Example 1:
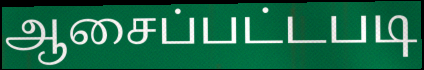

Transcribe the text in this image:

ஆசைப்பட்டபடி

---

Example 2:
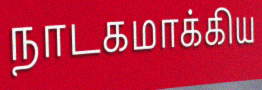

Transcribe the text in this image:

நாடகமாக்கிய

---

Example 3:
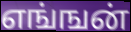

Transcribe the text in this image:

எங்ஙன்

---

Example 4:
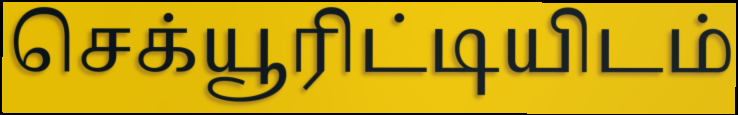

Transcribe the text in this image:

செக்யூரிட்டியிடம்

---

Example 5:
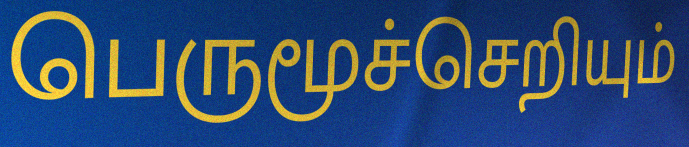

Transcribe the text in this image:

பெருமூச்செறியும்